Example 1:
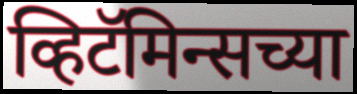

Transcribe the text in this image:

व्हिटॅमिन्सच्या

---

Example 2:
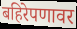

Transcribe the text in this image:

बहिरेपणावर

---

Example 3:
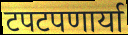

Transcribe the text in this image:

टपटपणार्या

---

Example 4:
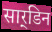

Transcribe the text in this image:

सार्डिन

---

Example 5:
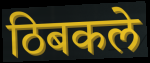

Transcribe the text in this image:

ठिबकले